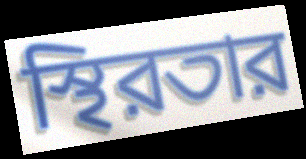
স্থিরতার